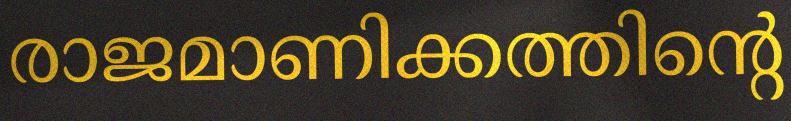
രാജമാണിക്കത്തിന്റെ